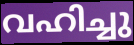
വഹിച്ചു